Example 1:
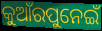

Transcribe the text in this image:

କୁଆଁରପୁନେଇଁ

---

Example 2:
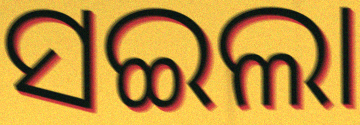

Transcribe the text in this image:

ସଇଲା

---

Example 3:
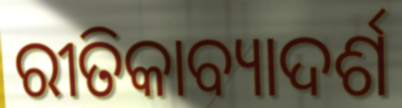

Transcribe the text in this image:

ରୀତିକାବ୍ୟାଦର୍ଶ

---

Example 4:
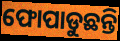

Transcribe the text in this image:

ଫୋପାଡୁଛନ୍ତି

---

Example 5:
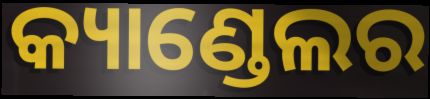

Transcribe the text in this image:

କ୍ୟାଣ୍ଡେଲର